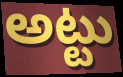
అట్టు